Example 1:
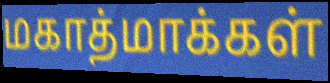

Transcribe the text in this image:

மகாத்மாக்கள்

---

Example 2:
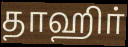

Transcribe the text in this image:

தாஹிர்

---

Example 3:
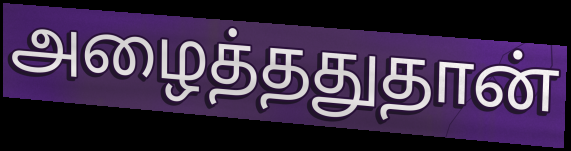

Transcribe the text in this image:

அழைத்ததுதான்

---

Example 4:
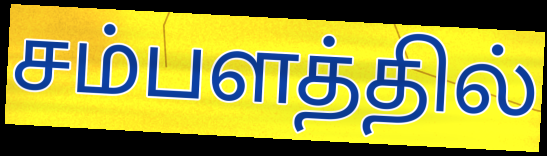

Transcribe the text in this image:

சம்பளத்தில்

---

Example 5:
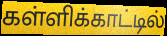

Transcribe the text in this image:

கள்ளிக்காட்டில்